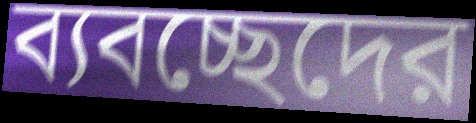
ব্যবচ্ছেদের